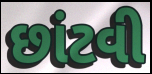
છાંટવી